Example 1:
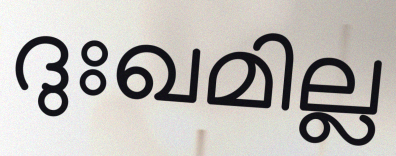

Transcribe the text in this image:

ദുഃഖമില്ല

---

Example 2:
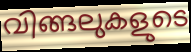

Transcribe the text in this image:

വിങ്ങലുകളുടെ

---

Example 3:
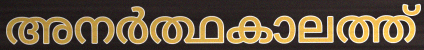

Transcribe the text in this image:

അനർത്ഥകാലത്ത്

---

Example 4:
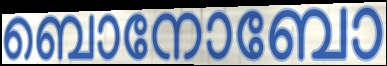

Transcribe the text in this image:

ബൊനോബോ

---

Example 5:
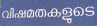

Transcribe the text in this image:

വിഷമതകളുടെ